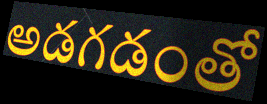
అడగడంతో